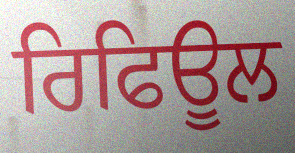
ਰਿਫਿਊਲ